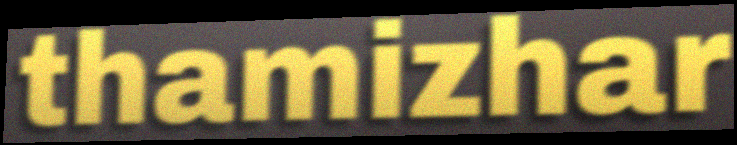
thamizhar